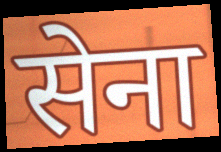
सेना